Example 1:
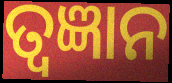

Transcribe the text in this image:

ତ୍ୱଜ୍ଞାନ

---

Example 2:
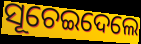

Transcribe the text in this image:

ସୂଚେଇଦେଲେ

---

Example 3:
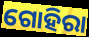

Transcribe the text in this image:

ଗୋହିରା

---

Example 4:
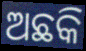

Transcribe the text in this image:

ଅଛକି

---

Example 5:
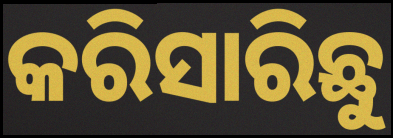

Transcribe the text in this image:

କରିସାରିଛୁ